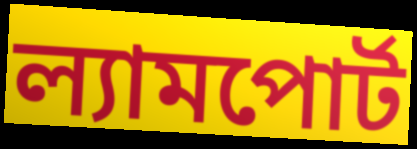
ল্যামপোর্ট